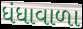
ધંધાવાળા